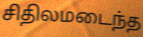
சிதிலமடைந்த